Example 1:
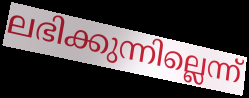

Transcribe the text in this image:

ലഭിക്കുന്നില്ലെന്ന്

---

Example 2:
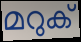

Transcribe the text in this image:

മറുക്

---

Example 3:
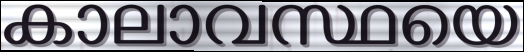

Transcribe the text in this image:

കാലാവസ്ഥയെ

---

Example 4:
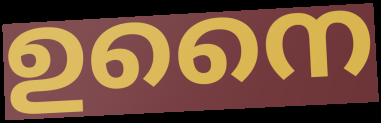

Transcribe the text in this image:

ഉനൈ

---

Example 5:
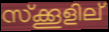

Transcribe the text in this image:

സ്ക്കൂളില്